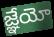
జ్ఞేయో